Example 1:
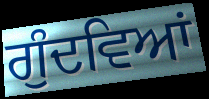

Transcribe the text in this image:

ਗੁੰਦਵਿਆਂ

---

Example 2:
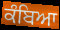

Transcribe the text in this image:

ਕੰਬਿਆ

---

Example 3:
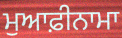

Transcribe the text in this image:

ਮੁਆਫ਼ੀਨਾਮਾ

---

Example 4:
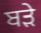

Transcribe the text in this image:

ਬਡ਼ੇ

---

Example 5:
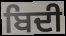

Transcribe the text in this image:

ਬਿਦੀ